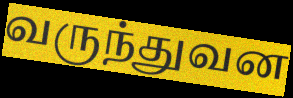
வருந்துவன